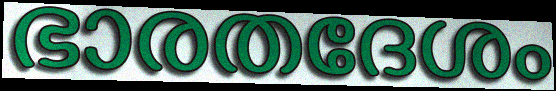
ഭാരതദേശം